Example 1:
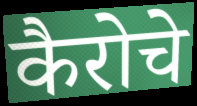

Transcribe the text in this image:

कैरोचे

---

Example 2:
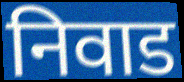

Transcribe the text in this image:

निवाड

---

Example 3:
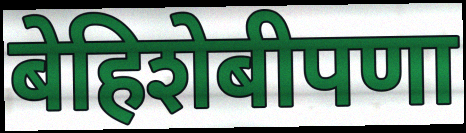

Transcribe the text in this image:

बेहिशेबीपणा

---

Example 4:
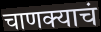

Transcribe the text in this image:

चाणक्याचं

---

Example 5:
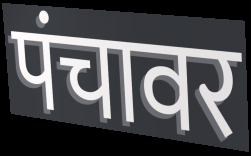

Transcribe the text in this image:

पंचावर